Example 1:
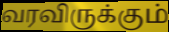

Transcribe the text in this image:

வரவிருக்கும்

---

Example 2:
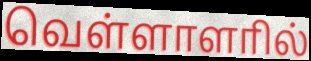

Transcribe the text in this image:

வெள்ளாளரில்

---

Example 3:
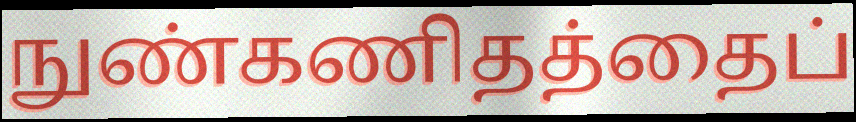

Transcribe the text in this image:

நுண்கணிதத்தைப்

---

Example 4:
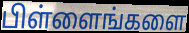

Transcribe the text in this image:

பிள்ளைங்களை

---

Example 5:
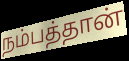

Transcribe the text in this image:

நம்பத்தான்